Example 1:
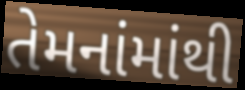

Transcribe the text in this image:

તેમનાંમાંથી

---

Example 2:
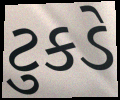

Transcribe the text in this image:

ટુકડે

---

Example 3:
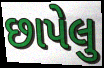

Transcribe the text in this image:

છાપેલુ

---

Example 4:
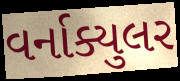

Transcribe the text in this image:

વર્નાક્યુલર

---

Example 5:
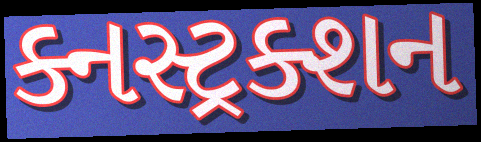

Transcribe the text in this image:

ક્નસ્ટ્રક્શન